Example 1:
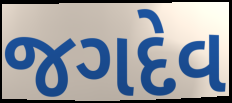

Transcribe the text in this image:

જગદેવ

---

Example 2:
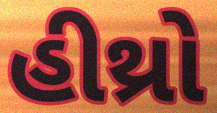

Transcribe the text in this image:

હીથ્રો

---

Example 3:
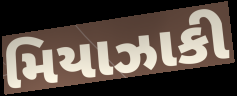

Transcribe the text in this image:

મિયાઝાકી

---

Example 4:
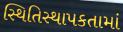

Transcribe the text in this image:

સ્થિતિસ્થાપકતામાં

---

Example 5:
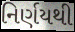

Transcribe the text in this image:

નિર્ણયથી